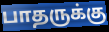
பாதருக்கு